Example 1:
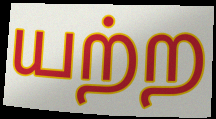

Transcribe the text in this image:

யற்ற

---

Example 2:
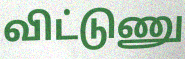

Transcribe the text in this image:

விட்டுணு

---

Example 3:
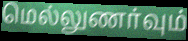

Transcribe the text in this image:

மெல்லுணர்வும்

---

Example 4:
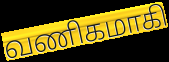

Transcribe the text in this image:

வணிகமாகி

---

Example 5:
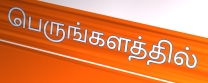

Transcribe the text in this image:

பெருங்களத்தில்